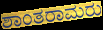
ಶಾಂತರಾಮರು